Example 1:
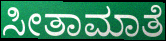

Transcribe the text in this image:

ಸೀತಾಮಾತೆ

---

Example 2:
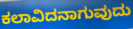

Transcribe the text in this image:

ಕಲಾವಿದನಾಗುವುದು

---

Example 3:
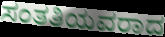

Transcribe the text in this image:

ಸಂತತಿಯವರಾದ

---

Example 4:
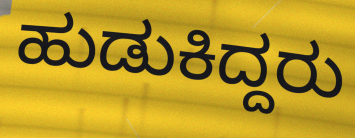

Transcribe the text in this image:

ಹುಡುಕಿದ್ದರು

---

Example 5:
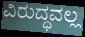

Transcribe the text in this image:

ವಿರುದ್ಧವಲ್ಲ